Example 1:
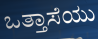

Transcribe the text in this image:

ಒತ್ತಾಸೆಯು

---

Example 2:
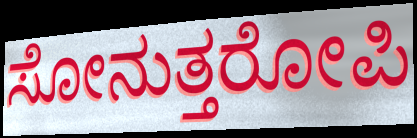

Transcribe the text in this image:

ಸೋನುತ್ತರೋಪಿ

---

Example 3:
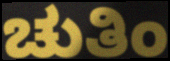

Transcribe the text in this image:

ಚುತಿಂ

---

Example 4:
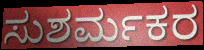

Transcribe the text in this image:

ಸುಶರ್ಮಕರ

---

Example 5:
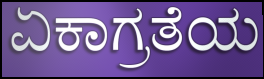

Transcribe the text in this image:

ಏಕಾಗ್ರತೆಯ